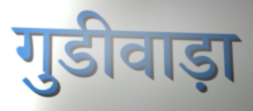
गुडीवाड़ा